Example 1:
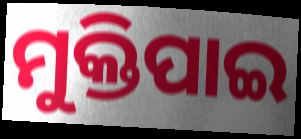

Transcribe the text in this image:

ମୁକ୍ତିପାଇ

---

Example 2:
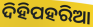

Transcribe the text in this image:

ଦିହିପହରିଆ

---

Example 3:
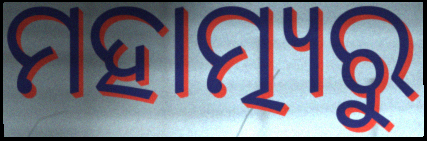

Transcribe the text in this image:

ମହାତ୍ମ୍ୟରୁ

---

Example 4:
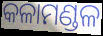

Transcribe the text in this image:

କଳାମଣ୍ଡଳ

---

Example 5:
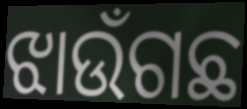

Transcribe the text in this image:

ଝାଉଁଗଛ